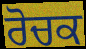
ਰੋਚਕ